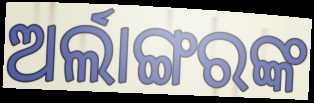
ଅର୍ଲାଙ୍ଗରଙ୍କ